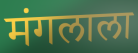
मंगलाला